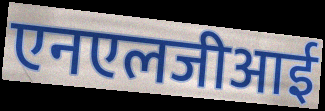
एनएलजीआई